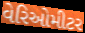
વેરિઓમીટર